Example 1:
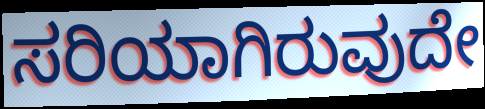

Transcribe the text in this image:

ಸರಿಯಾಗಿರುವುದೇ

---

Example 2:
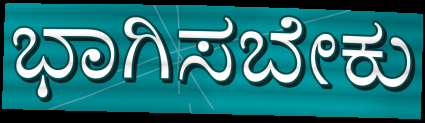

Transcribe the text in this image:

ಭಾಗಿಸಬೇಕು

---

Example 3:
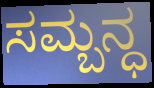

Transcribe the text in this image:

ಸಮ್ಬನ್ಧ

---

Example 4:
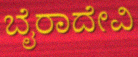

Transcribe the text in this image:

ಬೈರಾದೇವಿ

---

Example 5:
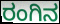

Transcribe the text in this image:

ರಂಗಿನ